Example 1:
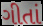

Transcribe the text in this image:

ગીતાં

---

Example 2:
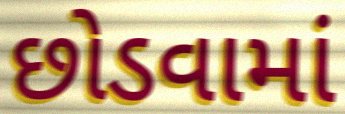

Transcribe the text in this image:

છોડવામાં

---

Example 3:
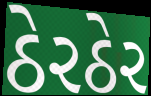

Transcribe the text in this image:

ઠેરઠેર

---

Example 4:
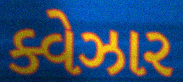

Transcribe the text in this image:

ક્વેઝાર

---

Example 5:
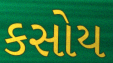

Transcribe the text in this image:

કસોય